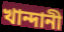
খান্দানী